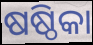
ଷଷ୍ଠିକା